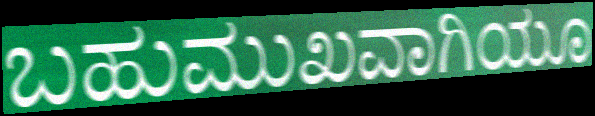
ಬಹುಮುಖವಾಗಿಯೂ